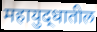
महायुद्धातील